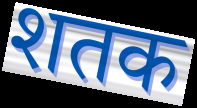
शतक